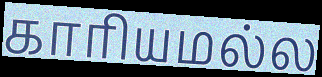
காரியமல்ல